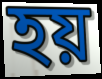
হয়